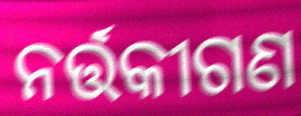
ନର୍ତ୍ତକୀଗଣ